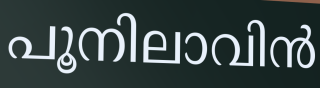
പൂനിലാവിൻ